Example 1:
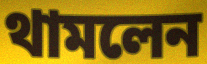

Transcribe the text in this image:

থামলেন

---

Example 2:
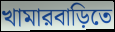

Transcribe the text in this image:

খামারবাড়িতে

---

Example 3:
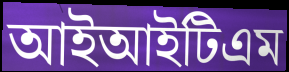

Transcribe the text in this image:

আইআইটিএম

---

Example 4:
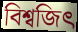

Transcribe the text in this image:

বিশ্বজিৎ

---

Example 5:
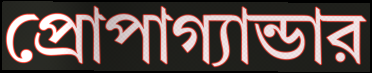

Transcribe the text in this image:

প্রোপাগ্যান্ডার